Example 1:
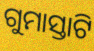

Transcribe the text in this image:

ଗୁମାସ୍ତାଟି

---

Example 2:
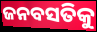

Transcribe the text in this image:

ଜନବସତିକୁ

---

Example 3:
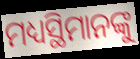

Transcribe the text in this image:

ମଧ୍ୟସ୍ଥିମାନଙ୍କୁ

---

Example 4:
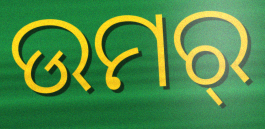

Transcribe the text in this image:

ଉମର୍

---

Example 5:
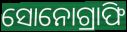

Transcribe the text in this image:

ସୋନୋଗ୍ରାଫି